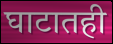
घाटातही